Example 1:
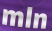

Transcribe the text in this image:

mln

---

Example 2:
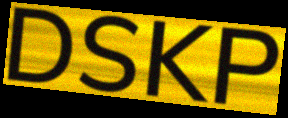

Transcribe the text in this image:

DSKP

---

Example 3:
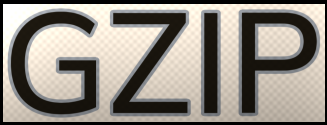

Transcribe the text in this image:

GZIP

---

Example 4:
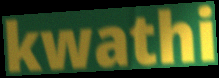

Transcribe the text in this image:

kwathi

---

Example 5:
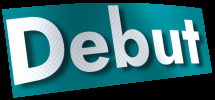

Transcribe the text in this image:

Debut